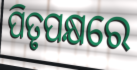
ପିତୃପକ୍ଷରେ